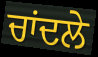
ਚਾਂਦਲੇ